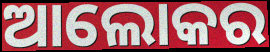
ଆଲୋକର